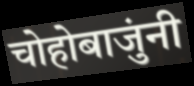
चोहोबाजुंनी